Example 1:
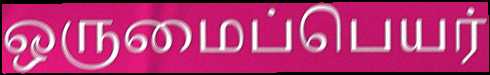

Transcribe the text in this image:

ஒருமைப்பெயர்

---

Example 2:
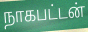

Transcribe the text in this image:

நாகபட்டன்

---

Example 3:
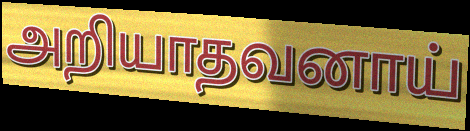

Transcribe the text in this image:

அறியாதவனாய்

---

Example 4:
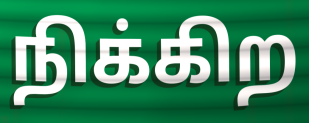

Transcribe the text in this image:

நிக்கிற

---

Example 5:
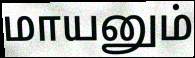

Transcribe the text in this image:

மாயனும்